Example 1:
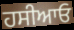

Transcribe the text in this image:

ਹਸੀਆਓ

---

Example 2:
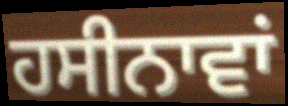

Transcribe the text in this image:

ਹਸੀਨਾਵਾਂ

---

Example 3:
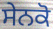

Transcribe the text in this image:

ਸੇਨਕੋ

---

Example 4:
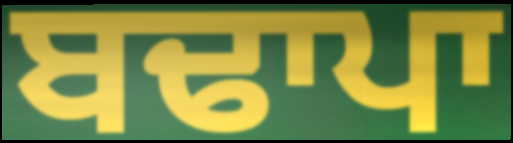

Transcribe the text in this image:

ਬਢਾਪਾ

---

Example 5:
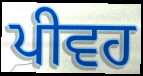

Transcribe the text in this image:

ਪੀਵਹ